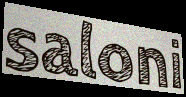
saloni